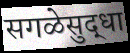
सगळेसुद्धा